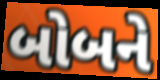
બોબને